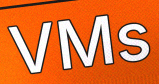
VMs